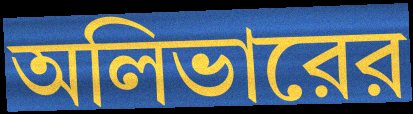
অলিভারের